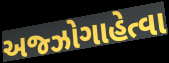
અજ્ઝોગાહેત્વા